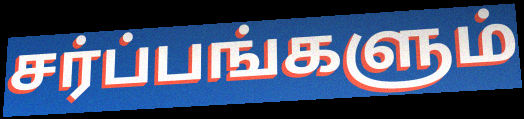
சர்ப்பங்களும்